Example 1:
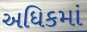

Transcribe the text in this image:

અધિકમાં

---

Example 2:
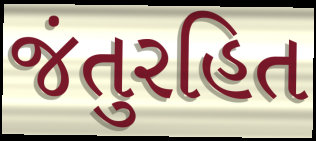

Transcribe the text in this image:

જંતુરહિત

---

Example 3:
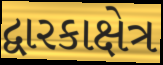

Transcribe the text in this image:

દ્વારકાક્ષેત્ર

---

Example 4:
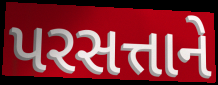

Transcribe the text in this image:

પરસત્તાને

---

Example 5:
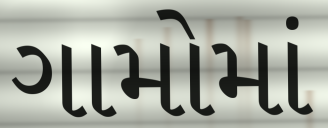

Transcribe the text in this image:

ગામોમાં